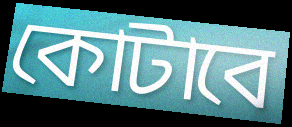
কোটাবে